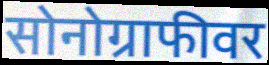
सोनोग्राफीवर